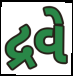
દ્રવે